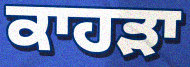
ਕਾਹੜਾ